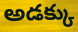
అడక్కు